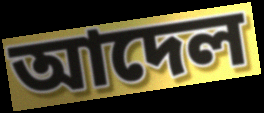
আদেল